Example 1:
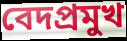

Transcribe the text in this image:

বেদপ্রমুখ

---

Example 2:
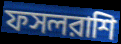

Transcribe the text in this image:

ফসলরাশি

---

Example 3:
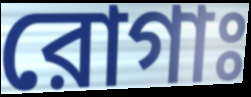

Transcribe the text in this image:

রোগাঃ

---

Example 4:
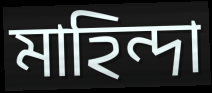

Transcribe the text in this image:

মাহিন্দা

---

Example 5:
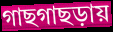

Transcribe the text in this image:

গাছগাছড়ায়